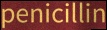
penicillin